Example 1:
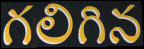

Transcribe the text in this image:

గలిగిన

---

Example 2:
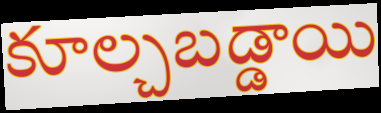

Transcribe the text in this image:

కూల్చబడ్డాయి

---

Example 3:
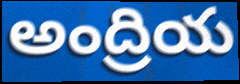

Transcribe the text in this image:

అంద్రియ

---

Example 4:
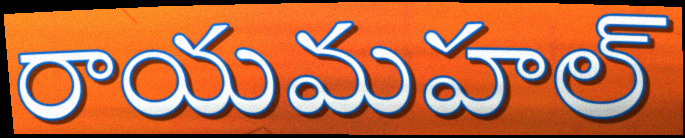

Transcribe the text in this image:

రాయమహల్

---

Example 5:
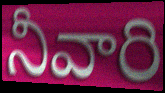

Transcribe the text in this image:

నీవారి